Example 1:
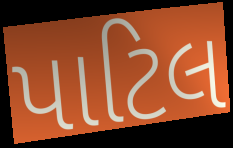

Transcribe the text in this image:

પાટિલ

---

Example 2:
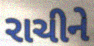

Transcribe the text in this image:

રાચીને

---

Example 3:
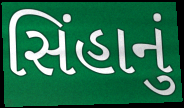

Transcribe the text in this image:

સિંહાનું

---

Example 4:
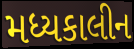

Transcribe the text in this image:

મધ્યકાલીન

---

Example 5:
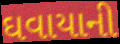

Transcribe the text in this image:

ઘવાયાની